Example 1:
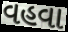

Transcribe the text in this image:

વહવા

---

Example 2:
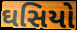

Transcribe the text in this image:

ઘસિયો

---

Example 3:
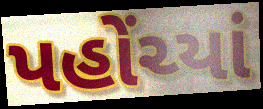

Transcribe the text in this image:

પહોંચ્યાં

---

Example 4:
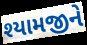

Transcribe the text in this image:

શ્યામજીને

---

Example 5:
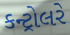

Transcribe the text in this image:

કન્ટ્રોલરે